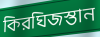
কিরঘিজস্তান